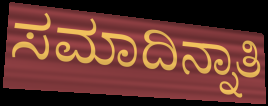
ಸಮಾದಿನ್ನಾತಿ